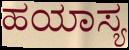
ಹಯಾಸ್ಯ